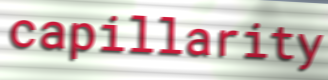
capillarity